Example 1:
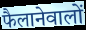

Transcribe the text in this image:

फैलानेवालों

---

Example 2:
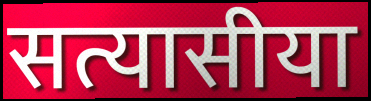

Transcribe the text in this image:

सत्यासीया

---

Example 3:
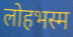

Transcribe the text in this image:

लोहभस्म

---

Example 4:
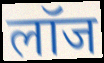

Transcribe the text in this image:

लॉज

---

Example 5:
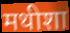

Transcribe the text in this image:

मथीशा